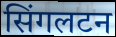
सिंगलटन